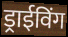
ड्राईविंग